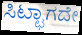
ಸಿಟ್ಟಾಗದೇ